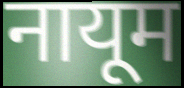
नायूम